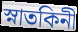
স্নাতকিনী